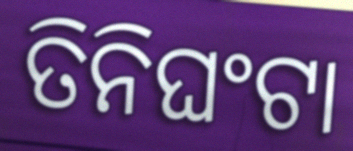
ତିନିଘଂଟା